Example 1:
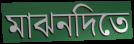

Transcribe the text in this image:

মাঝনদিতে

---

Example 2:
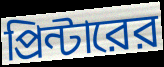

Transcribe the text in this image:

প্রিন্টারের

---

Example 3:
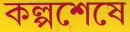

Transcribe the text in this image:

কল্পশেষে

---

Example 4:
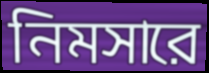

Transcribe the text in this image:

নিমসারে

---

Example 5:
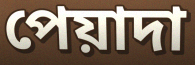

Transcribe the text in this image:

পেয়াদা